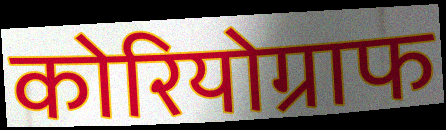
कोरियोग्राफ